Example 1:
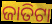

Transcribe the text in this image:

ଜାତିଟା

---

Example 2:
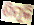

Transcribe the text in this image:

ଶିମୂଳି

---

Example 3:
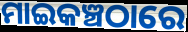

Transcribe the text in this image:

ମାଇକଞ୍ଚଠାରେ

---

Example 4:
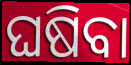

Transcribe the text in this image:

ଘଷିବା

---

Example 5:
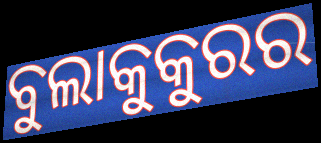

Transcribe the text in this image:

ବୁଲାକୁକୁରର